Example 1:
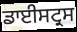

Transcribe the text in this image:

ਡਾਈਸਟ੍ਰਸ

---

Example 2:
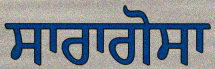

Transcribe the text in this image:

ਸਾਰਾਗੋਸਾ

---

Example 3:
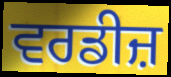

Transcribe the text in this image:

ਵਰਡੀਜ਼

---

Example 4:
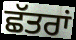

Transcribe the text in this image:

ਛੱਤਰਾਂ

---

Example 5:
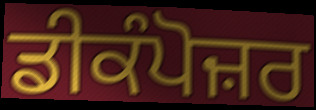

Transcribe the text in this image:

ਡੀਕੰਪੋਜ਼ਰ